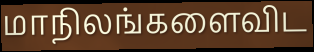
மாநிலங்களைவிட